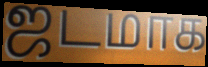
ஜடமாக